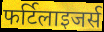
फर्टिलाइजर्स